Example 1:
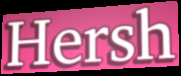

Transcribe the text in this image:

Hersh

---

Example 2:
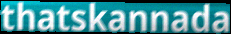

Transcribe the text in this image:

thatskannada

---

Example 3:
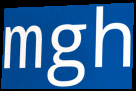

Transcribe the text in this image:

mgh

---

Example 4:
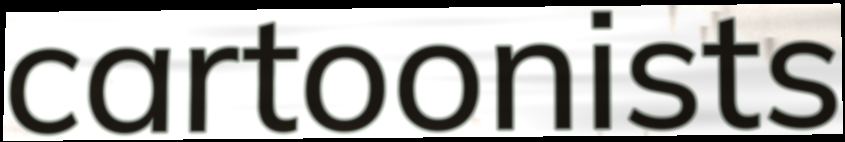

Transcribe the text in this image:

cartoonists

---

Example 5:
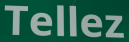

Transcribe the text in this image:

Tellez